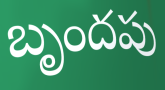
బృందపు